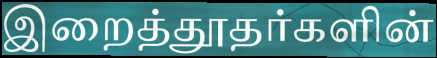
இறைத்தூதர்களின்